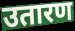
उतारण